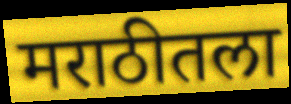
मराठीतला